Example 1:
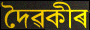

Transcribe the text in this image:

দৈৱকীৰ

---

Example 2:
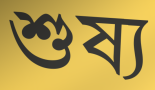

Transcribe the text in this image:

শুষ্য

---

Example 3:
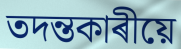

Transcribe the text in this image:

তদন্তকাৰীয়ে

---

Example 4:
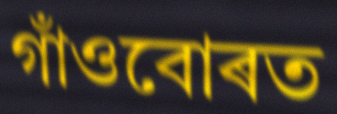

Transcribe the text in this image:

গাঁওবোৰত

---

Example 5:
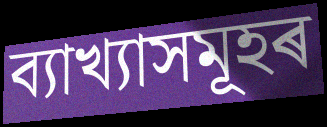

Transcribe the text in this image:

ব্যাখ্যাসমূহৰ